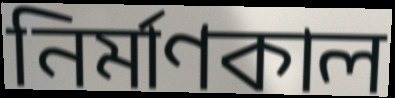
নির্মাণকাল